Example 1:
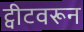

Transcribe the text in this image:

ट्वीटवरून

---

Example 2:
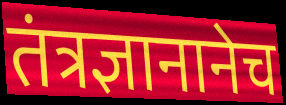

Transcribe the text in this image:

तंत्रज्ञानानेच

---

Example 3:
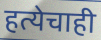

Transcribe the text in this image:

हत्येचाही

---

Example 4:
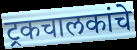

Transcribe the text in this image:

ट्रकचालकांचे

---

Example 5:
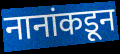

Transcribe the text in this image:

नानांकडून